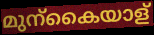
മുന്കൈയാള്